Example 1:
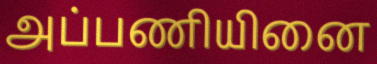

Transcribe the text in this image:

அப்பணியினை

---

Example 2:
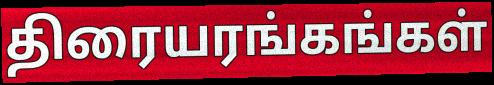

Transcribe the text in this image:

திரையரங்கங்கள்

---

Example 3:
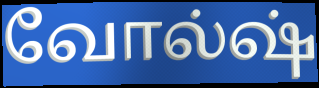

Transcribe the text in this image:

வோல்ஷ்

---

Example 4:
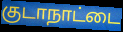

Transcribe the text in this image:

குடாநாட்டை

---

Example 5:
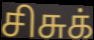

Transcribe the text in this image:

சிசுக்